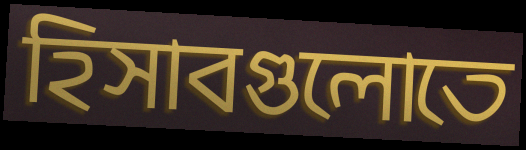
হিসাবগুলোতে